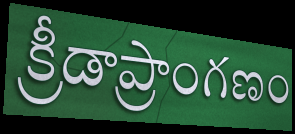
క్రీడాప్రాంగణం